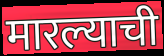
मारल्याची